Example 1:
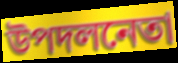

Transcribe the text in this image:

উপদলনেতা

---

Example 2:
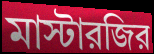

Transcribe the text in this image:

মাস্টারজির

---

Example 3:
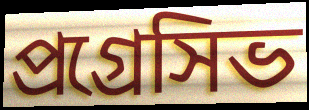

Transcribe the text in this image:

প্রগ্রেসিভ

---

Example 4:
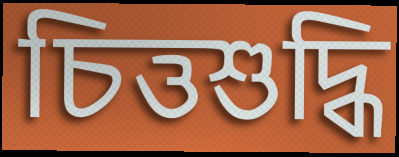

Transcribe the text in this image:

চিত্তশুদ্ধি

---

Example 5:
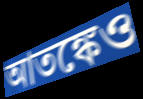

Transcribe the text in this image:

আতঙ্কেও